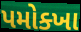
પમોક્ખા